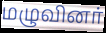
மழுவினர்